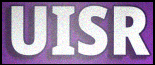
UISR